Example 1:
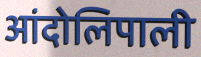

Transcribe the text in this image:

आंदोलिपाली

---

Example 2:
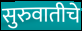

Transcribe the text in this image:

सुरुवातीचे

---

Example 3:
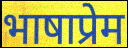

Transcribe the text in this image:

भाषाप्रेम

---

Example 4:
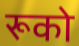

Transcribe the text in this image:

रूको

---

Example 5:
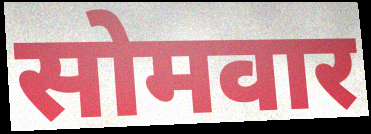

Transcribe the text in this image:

सोमवार